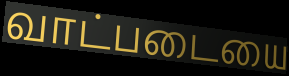
வாட்படையை